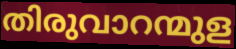
തിരുവാറന്മുള